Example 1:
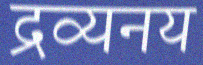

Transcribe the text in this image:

द्रव्यनय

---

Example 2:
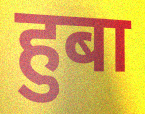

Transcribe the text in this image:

हुबा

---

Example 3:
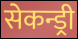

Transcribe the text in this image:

सेकन्ड्री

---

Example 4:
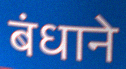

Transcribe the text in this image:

बंधाने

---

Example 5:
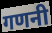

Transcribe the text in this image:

गणनी